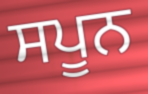
ਸਪੂਨ